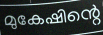
മുകേഷിന്റെ